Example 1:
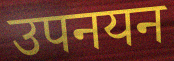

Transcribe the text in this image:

उपनयन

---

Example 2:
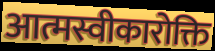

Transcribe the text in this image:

आत्मस्वीकारोक्ति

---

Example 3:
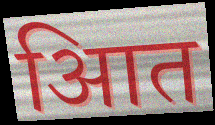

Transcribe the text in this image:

आित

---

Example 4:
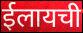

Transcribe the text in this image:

ईलायची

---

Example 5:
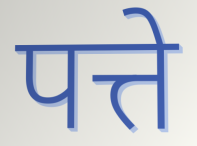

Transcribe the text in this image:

पत्ते